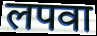
लपवा